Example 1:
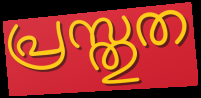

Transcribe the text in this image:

പ്രസ്തുത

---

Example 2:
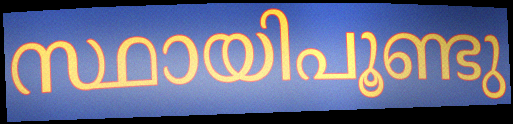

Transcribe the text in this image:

സ്ഥായിപൂണ്ടു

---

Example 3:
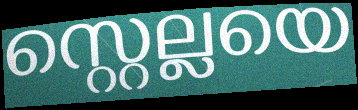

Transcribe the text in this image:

സ്റ്റെല്ലയെ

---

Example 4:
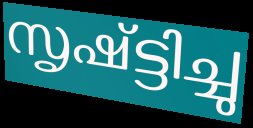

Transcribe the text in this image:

സൃഷ്ട്ടിച്ചു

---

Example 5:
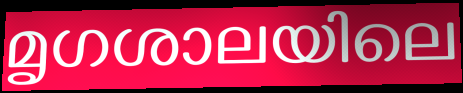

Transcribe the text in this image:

മൃഗശാലയിലെ